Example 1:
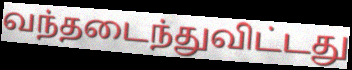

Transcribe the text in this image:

வந்தடைந்துவிட்டது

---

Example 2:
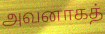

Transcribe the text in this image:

அவனாகத்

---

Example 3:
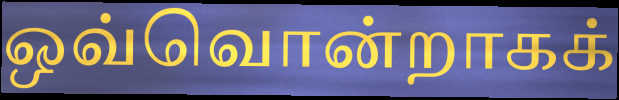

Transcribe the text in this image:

ஒவ்வொன்றாகக்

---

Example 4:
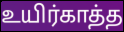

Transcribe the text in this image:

உயிர்காத்த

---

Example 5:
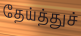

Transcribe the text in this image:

தேய்த்துச்